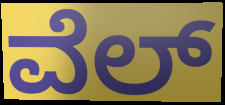
ವೆಲ್